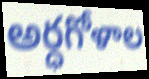
అర్ధగోళాల